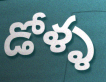
డోళ్ళ